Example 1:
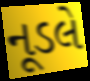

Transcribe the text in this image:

નૂડલે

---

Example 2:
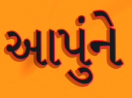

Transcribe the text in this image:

આપુંને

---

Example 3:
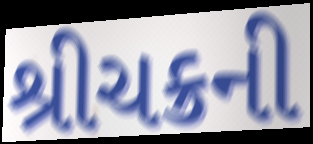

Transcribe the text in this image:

શ્રીચક્રની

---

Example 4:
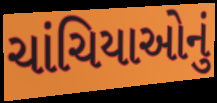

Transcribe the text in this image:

ચાંચિયાઓનું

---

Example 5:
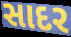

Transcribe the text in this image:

સાદર